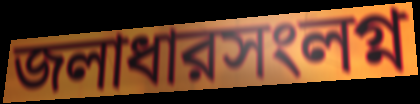
জলাধারসংলগ্ন